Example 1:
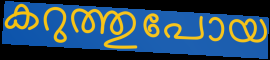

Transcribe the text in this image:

കറുത്തുപോയ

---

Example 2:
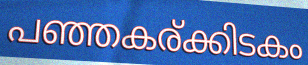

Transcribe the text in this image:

പഞ്ഞകര്ക്കിടകം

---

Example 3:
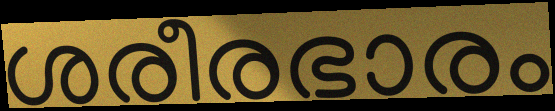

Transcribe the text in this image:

ശരീരഭാരം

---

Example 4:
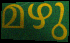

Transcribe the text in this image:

മഴു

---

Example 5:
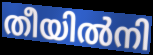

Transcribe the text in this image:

തീയിൽനി